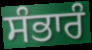
ਸੰਭਾਰੰ